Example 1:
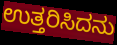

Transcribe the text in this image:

ಉತ್ತರಿಸಿದನು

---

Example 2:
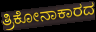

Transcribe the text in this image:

ತ್ರಿಕೋನಾಕಾರದ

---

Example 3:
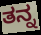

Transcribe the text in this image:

ತನ್ನ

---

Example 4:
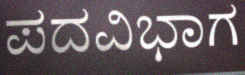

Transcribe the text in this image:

ಪದವಿಭಾಗ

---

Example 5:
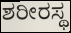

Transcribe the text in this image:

ಶರೀರಸ್ಥ